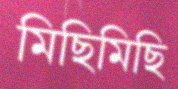
মিছিমিছি